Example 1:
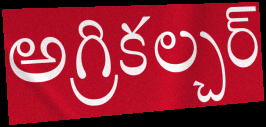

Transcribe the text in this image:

అగ్రికల్చర్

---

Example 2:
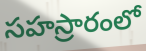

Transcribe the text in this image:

సహస్రారంలో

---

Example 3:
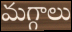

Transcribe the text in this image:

మగ్గాలు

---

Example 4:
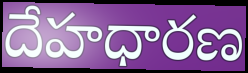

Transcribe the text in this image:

దేహధారణ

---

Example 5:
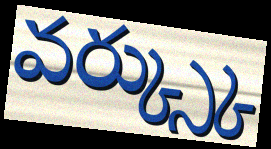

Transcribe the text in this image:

వర్క్స్కు